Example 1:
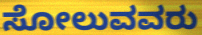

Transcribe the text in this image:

ಸೋಲುವವರು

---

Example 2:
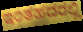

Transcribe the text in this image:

ಇಂತಹದರಲ್ಲಿ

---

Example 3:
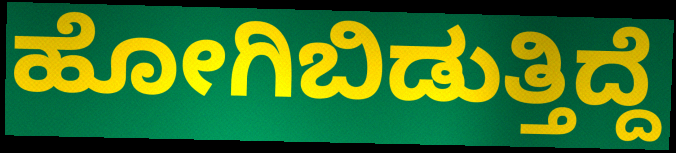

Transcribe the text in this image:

ಹೋಗಿಬಿಡುತ್ತಿದ್ದೆ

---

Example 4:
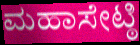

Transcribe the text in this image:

ಮಹಾಸೇಟ್ಠಿ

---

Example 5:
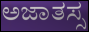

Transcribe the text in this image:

ಅಜಾತಸ್ಸ